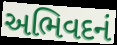
અભિવદનં